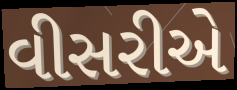
વીસરીએ